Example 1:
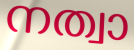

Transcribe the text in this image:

നത്വാ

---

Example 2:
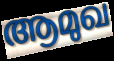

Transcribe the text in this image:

ആമുഖ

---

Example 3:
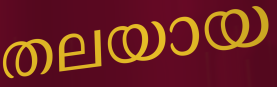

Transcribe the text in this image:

തലയായ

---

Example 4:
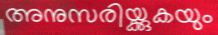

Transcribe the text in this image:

അനുസരിയ്ക്കുകയും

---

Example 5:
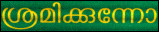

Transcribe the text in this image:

ശ്രമിക്കുന്നോ